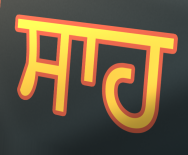
ਸਾਹ